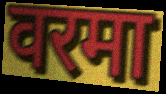
वरमा